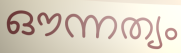
ഔന്നത്യം